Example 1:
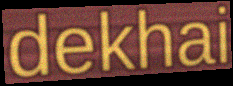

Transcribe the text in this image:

dekhai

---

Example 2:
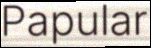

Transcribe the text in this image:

Papular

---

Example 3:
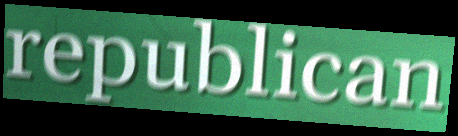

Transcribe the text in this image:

republican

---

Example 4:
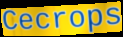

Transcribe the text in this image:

Cecrops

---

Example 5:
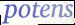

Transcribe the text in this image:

potens